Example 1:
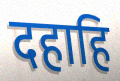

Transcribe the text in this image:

दहाहि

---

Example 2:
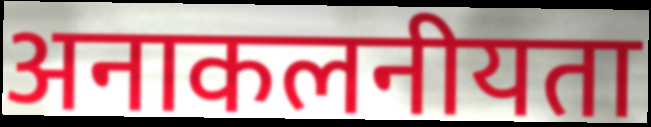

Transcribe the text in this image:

अनाकलनीयता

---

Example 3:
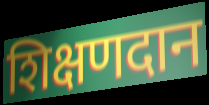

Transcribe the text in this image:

शिक्षणदान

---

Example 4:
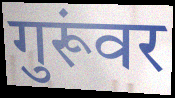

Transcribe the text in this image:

गुरूंवर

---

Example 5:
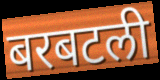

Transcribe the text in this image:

बरबटली